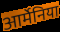
आर्मेनिया